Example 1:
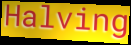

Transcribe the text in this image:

Halving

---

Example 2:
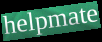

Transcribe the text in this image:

helpmate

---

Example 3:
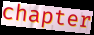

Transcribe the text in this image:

chapter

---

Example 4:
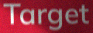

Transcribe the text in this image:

Target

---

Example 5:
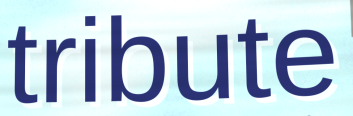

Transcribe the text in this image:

tribute